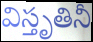
విస్తృతినీ